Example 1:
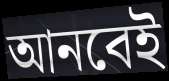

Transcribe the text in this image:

আনবেই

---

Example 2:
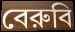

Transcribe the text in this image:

বেরুবি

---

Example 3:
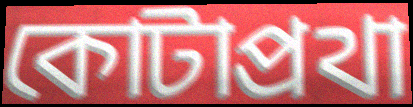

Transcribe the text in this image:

কোটাপ্রথা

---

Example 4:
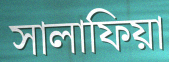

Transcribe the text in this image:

সালাফিয়া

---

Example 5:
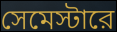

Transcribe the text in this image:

সেমেস্টারে